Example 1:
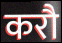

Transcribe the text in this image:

करौ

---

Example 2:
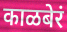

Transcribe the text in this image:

काळबेरं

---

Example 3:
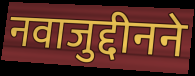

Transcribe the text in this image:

नवाजुद्दीनने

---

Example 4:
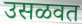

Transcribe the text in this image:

उसळवत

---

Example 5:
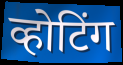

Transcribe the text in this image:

व्होटिंग